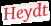
Heydt